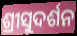
ଶ୍ରୀସୁଦର୍ଶନ